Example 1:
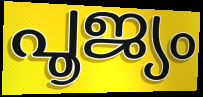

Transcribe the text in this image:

പൂജ്യം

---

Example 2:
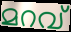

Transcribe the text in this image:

മറവ്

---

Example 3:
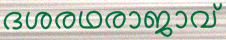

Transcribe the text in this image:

ദശരഥരാജാവ്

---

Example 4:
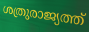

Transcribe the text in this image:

ശത്രുരാജ്യത്ത്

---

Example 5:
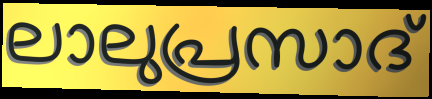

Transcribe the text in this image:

ലാലുപ്രസാദ്